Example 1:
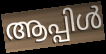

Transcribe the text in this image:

ആപ്പിൾ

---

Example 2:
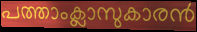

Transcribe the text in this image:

പത്താംക്ലാസുകാരൻ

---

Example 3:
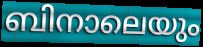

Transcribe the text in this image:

ബിനാലെയും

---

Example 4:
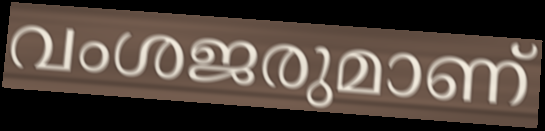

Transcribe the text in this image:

വംശജരുമാണ്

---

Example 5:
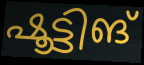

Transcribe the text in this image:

ഷൂട്ടിങ്